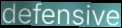
defensive